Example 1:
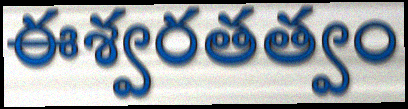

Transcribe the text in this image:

ఈశ్వరతత్వం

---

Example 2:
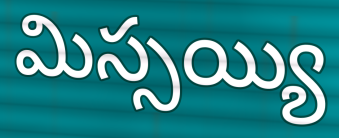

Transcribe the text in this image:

మిస్సయ్యి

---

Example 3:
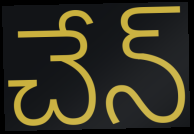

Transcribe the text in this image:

చేన్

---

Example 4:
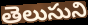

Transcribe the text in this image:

తెలుసుని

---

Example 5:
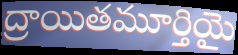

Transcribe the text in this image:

ద్రాయితమూర్తియై